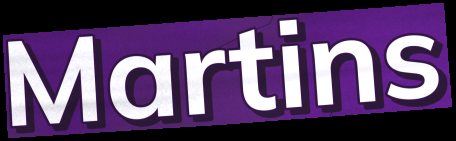
Martins